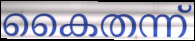
കൈതന്ന്